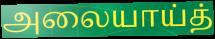
அலையாய்த்